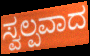
ಸ್ವಲ್ಪವಾದ